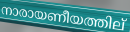
നാരായണീയത്തില്